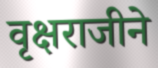
वृक्षराजीने